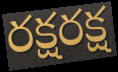
రక్షరక్ష